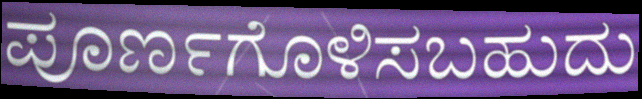
ಪೂರ್ಣಗೊಳಿಸಬಹುದು